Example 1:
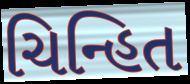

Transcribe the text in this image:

ચિન્હિત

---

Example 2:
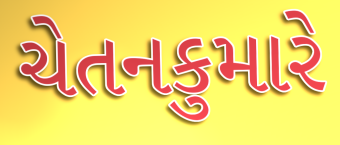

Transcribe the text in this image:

ચેતનકુમારે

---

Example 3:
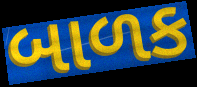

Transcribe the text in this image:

બાળક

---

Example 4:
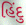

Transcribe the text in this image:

હિંદુ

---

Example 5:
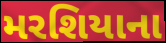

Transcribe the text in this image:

મરશિયાના